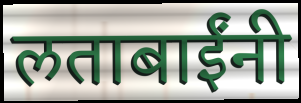
लताबाईंनी